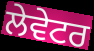
ਲੇਵੇਟਰ